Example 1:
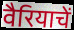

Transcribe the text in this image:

वैरियाचें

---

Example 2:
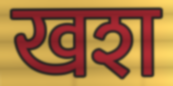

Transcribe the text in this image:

खश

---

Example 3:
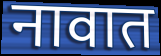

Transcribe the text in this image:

नावात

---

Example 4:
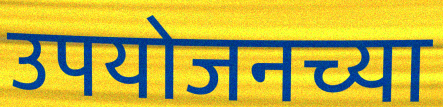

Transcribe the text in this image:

उपयोजनच्या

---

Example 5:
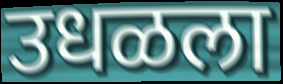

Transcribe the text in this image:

उधळला